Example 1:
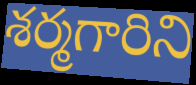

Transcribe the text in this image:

శర్మగారిని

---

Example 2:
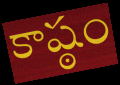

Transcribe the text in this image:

కాష్ఠం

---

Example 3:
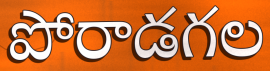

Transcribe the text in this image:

పోరాడగల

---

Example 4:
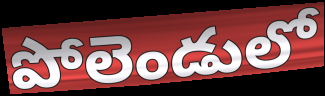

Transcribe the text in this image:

పోలెండులో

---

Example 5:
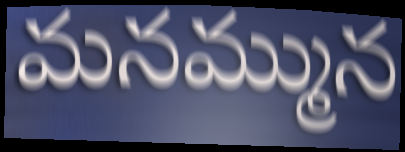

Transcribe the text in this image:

మనమ్మున